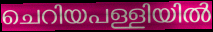
ചെറിയപള്ളിയിൽ